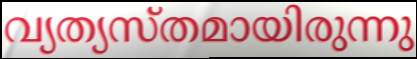
വ്യത്യസ്തമായിരുന്നു